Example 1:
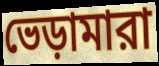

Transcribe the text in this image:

ভেড়ামারা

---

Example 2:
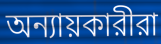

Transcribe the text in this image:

অন্যায়কারীরা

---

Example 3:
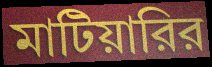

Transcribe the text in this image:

মাটিয়ারির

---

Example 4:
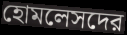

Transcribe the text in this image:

হোমলেসদের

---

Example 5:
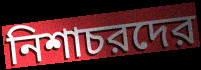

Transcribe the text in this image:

নিশাচরদের